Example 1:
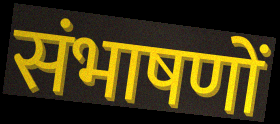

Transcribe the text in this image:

संभाषणों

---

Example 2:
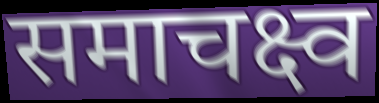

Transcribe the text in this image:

समाचक्ष्व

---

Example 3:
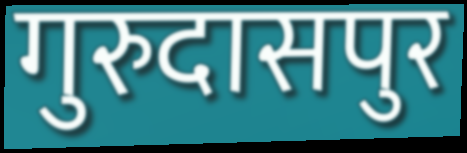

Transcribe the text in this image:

गुरुदासपुर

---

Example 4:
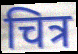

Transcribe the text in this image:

चित्र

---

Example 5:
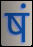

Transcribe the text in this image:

षं